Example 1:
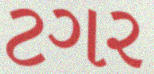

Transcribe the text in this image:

ટગર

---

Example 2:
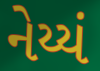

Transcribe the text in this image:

નેય્યં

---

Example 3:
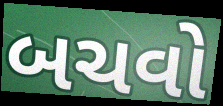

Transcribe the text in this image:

બચવો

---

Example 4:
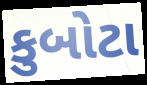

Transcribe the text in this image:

કુબોટા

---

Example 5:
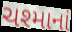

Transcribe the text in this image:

ચશ્માનાં